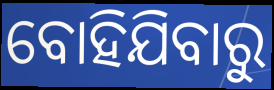
ବୋହିଯିବାରୁ